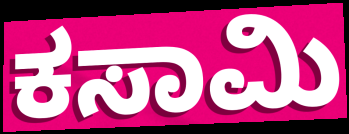
ಕಸಾಮಿ